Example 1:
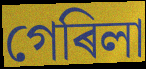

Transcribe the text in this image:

গেৰিলা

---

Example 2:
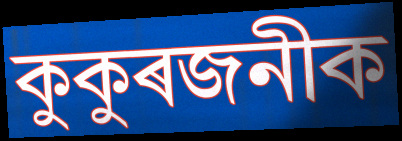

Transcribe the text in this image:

কুকুৰজনীক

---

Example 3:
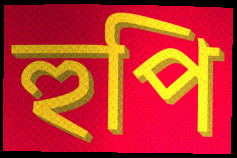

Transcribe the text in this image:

হুপি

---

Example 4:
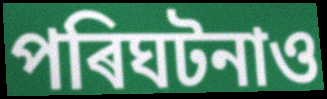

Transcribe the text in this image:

পৰিঘটনাও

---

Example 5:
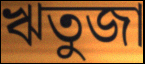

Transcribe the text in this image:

ঋতুজা